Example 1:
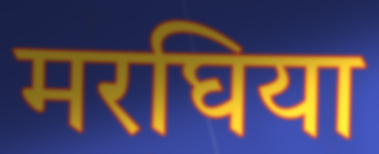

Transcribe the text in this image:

मरघिया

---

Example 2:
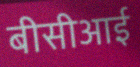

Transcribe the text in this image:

बीसीआई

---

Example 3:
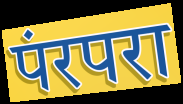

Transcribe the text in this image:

पंरपरा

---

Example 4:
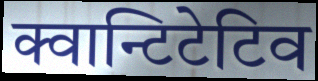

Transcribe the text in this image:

क्वान्टिटेटिव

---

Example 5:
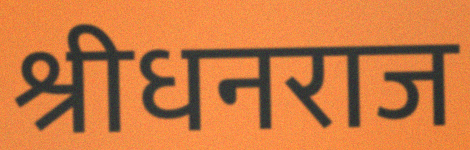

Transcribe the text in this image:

श्रीधनराज